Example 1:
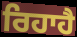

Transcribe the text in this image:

ਰਿਹਾਹੈ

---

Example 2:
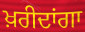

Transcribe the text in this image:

ਖ਼ਰੀਦਾਂਗਾ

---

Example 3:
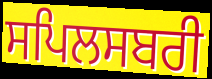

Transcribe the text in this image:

ਸਪਿਲਸਬਰੀ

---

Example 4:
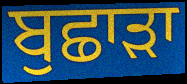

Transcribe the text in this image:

ਬੁਛਾੜਾ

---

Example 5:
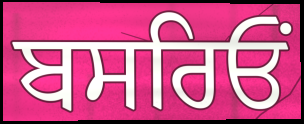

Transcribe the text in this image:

ਬਸਰਿਓਂ